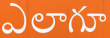
ఎలాగూ